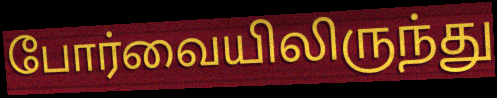
போர்வையிலிருந்து